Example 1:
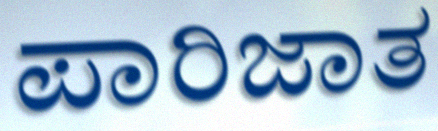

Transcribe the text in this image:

ಪಾರಿಜಾತ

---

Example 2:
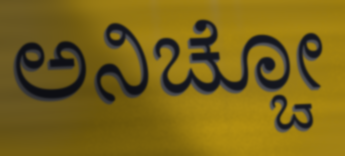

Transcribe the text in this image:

ಅನಿಚ್ಚೋ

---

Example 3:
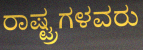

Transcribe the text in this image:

ರಾಷ್ಟ್ರಗಳವರು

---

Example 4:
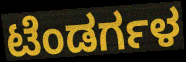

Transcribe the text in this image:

ಟೆಂಡರ್ಗಳ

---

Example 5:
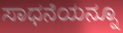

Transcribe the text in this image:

ಸಾಧನೆಯನ್ನೂ